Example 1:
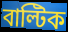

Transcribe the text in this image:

বাল্টিক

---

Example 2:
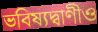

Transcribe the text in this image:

ভবিষ্যদ্বাণীও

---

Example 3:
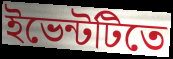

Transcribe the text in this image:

ইভেন্টটিতে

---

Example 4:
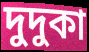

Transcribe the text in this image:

দুদুকা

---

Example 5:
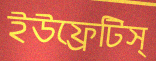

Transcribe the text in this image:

ইউফ্রেটিস্